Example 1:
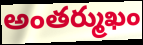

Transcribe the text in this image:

అంతర్ముఖం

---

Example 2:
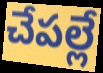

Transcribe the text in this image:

చేపల్లే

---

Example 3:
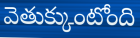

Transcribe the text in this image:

వెతుక్కుంటోంది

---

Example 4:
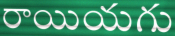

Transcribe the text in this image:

రాయియగు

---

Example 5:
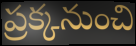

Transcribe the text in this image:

ప్రక్కనుంచి